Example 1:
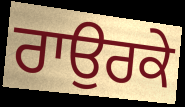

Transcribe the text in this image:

ਰਾਉਰਕੇ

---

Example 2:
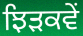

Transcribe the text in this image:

ਝਿੜਕਵੇਂ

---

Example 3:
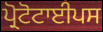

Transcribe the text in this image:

ਪ੍ਰੋਟੋਟਾਈਪਸ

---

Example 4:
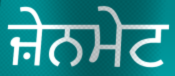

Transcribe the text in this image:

ਜ਼ੇਨਮੇਟ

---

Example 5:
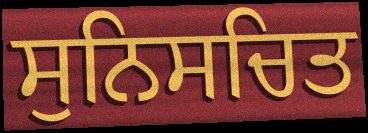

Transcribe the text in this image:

ਸੁਨਿਸਚਿਤ